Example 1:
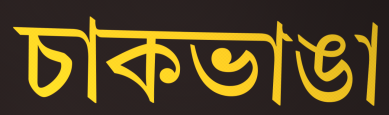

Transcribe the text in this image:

চাকভাঙা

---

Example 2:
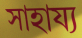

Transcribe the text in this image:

সাহায্য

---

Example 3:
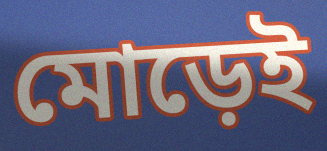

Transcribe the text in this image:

মোড়েই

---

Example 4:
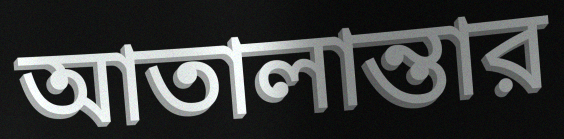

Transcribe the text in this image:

আতালান্তার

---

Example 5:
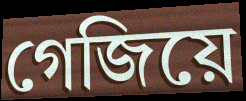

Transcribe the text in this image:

গেজিয়ে